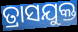
ତ୍ରାସଯୁକ୍ତ